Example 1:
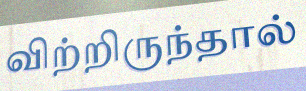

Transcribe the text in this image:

விற்றிருந்தால்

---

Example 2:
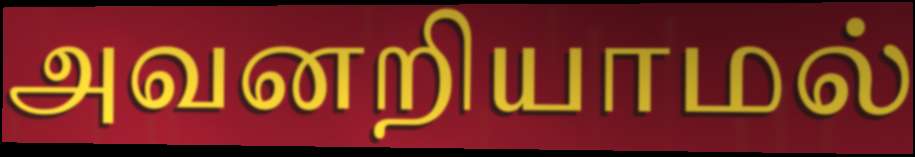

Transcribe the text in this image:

அவனறியாமல்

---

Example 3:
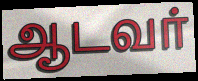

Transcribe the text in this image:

ஆடவர்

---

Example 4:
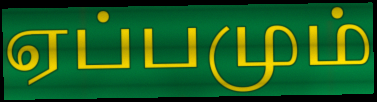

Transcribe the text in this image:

ஏப்பமும்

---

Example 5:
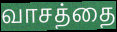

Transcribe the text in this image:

வாசத்தை